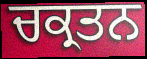
ਚਕ੍ਰਤਨ